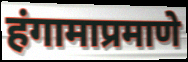
हंगामाप्रमाणे